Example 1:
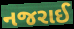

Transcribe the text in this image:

નજરાઈ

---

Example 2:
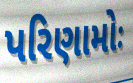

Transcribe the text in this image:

પરિણામોઃ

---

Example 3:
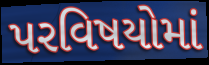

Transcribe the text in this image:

પરવિષયોમાં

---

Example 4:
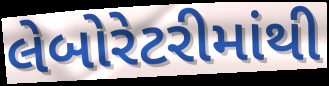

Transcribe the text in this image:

લેબોરેટરીમાંથી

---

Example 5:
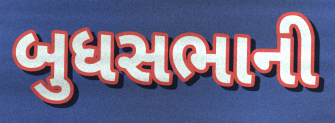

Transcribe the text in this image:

બુધસભાની